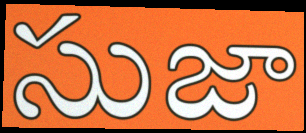
సుజా